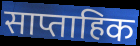
साप्ताहिक